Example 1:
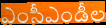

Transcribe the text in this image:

ఎంసీఎండీల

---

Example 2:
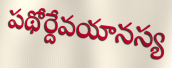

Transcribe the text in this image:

పథోర్దేవయానస్య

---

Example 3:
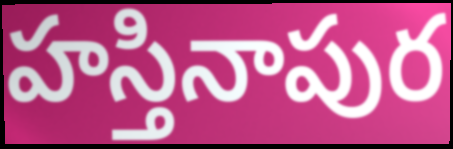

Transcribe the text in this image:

హస్తినాపుర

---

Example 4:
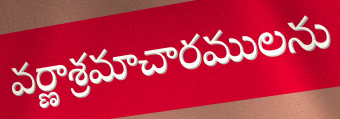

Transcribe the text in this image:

వర్ణాశ్రమాచారములను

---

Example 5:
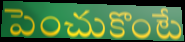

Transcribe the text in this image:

పెంచుకొంటే